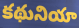
కథునియా